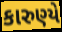
કારુણ્યે